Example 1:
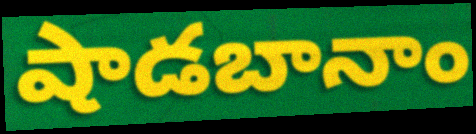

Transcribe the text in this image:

షాడబానాం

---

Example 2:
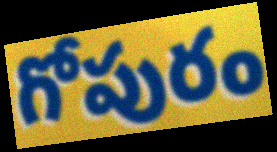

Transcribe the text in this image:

గోపురం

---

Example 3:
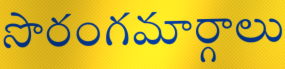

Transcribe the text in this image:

సొరంగమార్గాలు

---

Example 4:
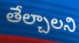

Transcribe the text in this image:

తేల్చాలని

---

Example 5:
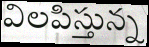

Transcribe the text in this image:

విలపిస్తున్న